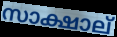
സാക്ഷാല്